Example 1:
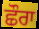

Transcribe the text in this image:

ਛੌਰਾ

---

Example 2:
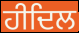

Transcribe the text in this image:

ਹੀਦਿਲ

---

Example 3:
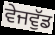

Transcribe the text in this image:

ਵੇਜਵੁੱਡ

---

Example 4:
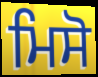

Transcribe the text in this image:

ਮਿਸੋ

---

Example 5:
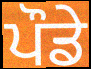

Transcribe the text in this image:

ਪੌਡੇ